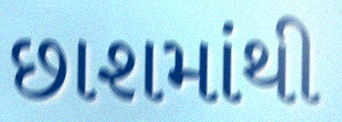
છાશમાંથી